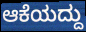
ಆಕೆಯದ್ದು